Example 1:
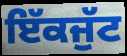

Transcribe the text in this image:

ਇੱਕਜੁੱਟ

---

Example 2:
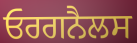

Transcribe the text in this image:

ਓਰਗਨੈਲਸ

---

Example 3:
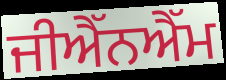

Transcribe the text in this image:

ਜੀਐੱਨਐੱਮ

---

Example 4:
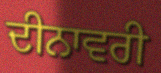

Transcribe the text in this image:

ਦੀਨਾਵਰੀ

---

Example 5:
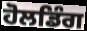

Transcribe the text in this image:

ਹੋਲਡਿੰਗ